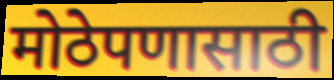
मोठेपणासाठी